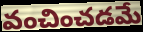
వంచించడమే